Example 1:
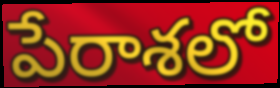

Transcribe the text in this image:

పేరాశలో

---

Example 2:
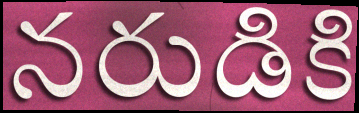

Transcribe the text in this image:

నరుడికి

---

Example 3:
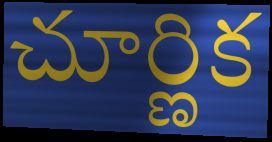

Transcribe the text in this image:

చూర్ణిక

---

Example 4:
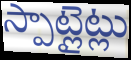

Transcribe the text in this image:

స్పాట్లైట్లు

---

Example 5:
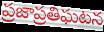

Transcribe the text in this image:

ప్రజాప్రతిఘటన